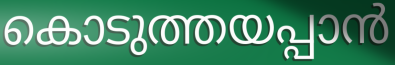
കൊടുത്തയപ്പാൻ